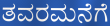
ತವರಮನೆಗೆ